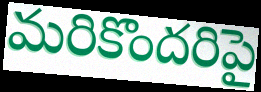
మరికొందరిపై